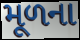
મૂળના